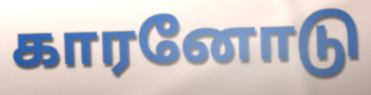
காரனோடு